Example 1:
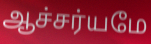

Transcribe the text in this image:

ஆச்சர்யமே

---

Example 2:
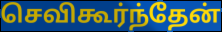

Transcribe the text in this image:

செவிகூர்ந்தேன்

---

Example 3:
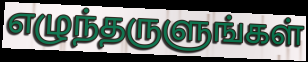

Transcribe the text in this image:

எழுந்தருளுங்கள்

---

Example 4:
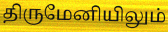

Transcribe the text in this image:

திருமேனியிலும்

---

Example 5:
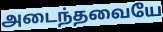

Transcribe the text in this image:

அடைந்தவையே